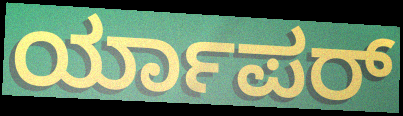
ರ್ಯಾಪರ್